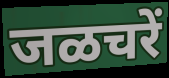
जळचरें